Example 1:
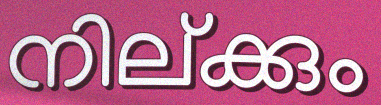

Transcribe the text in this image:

നില്ക്കും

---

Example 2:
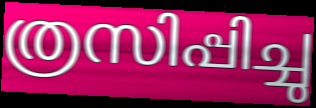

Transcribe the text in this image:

ത്രസിപ്പിച്ചു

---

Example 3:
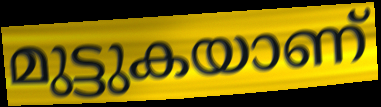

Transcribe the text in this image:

മുട്ടുകയാണ്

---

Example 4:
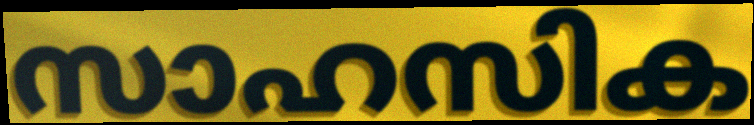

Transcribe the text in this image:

സാഹസിക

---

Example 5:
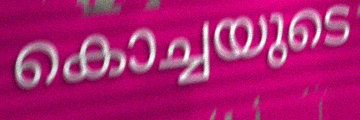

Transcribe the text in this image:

കൊച്ചയുടെ